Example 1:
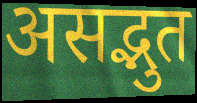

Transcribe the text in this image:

असद्भुत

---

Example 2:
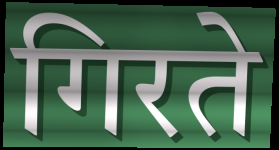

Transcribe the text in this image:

गिरते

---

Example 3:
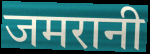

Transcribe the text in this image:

जमरानी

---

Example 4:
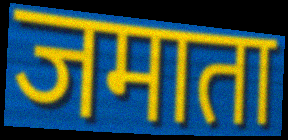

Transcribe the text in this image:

जमाता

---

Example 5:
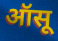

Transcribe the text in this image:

ऑसू